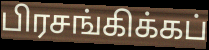
பிரசங்கிக்கப்